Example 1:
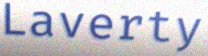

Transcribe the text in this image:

Laverty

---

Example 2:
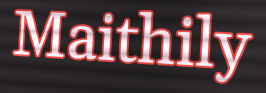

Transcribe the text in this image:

Maithily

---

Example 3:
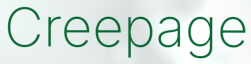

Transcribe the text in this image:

Creepage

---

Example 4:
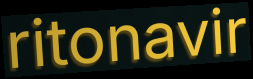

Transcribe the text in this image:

ritonavir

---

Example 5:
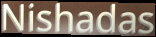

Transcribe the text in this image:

Nishadas